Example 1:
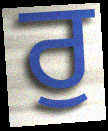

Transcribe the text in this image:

ਰੁ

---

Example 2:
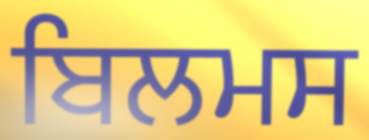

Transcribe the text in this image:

ਬਿਲਮਸ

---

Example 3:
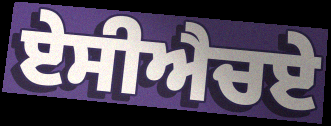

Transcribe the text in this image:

ਏਸੀਐਚਏ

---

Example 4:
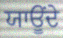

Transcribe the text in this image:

ਯਾਊਂਦੇ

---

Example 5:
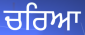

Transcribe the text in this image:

ਚਰਿਆ